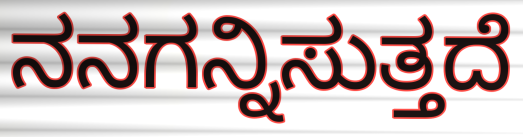
ನನಗನ್ನಿಸುತ್ತದೆ